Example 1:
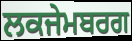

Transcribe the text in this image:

ਲਕਜੇਮਬਰਗ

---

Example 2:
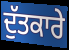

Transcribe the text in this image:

ਦੁੱਤਕਾਰੇ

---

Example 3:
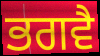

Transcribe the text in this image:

ਭਗਵੈ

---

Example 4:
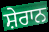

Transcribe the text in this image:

ਸ਼ੇਰਾਨ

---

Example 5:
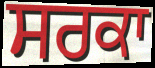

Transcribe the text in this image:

ਸਰਕਾ